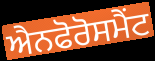
ਐਨਫੋਰੋਸਮੈਂਟ